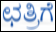
ಛತ್ರಿಗೆ